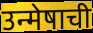
उन्मेषाची